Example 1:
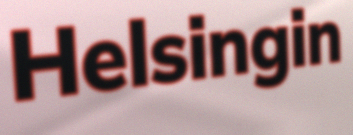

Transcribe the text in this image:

Helsingin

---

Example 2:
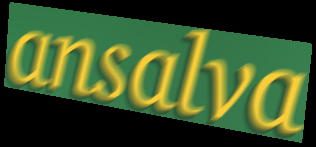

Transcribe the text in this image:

ansalva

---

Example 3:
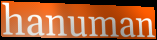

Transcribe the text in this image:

hanuman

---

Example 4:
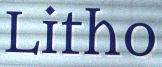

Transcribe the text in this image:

Litho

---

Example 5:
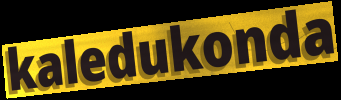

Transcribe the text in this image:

kaledukonda